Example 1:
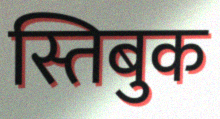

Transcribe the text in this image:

स्तिबुक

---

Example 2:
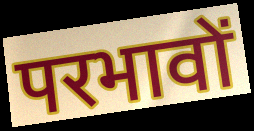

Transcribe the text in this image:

परभावों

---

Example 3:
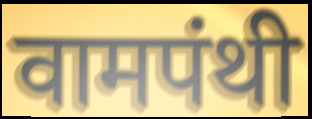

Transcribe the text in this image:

वामपंथी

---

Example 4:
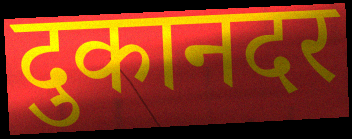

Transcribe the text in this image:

दुकानदर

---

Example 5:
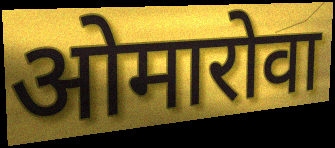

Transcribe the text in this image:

ओमारोवा